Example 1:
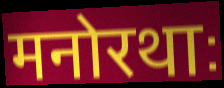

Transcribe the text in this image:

मनोरथाः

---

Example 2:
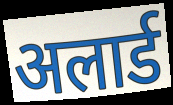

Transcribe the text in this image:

अलार्ड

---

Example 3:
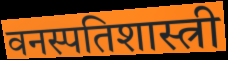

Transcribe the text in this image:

वनस्पतिशास्त्री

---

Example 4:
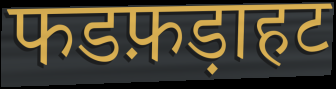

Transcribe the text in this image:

फडफ़ड़ाहट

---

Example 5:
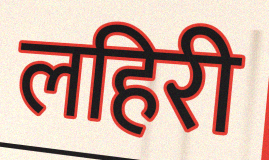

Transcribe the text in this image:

लहिरी